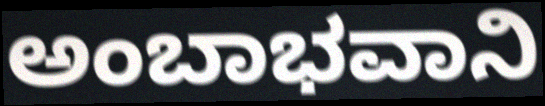
ಅಂಬಾಭವಾನಿ